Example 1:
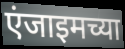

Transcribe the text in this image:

एंजाइमच्या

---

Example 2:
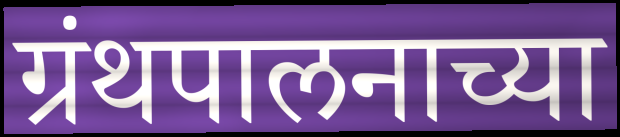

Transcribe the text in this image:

ग्रंथपालनाच्या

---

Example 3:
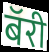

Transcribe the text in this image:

बॅरी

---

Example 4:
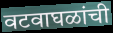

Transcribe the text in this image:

वटवाघळांची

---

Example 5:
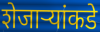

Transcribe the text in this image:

शेजाऱ्यांकडे